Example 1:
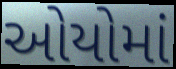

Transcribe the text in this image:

ઓયોમાં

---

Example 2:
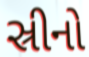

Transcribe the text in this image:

સ્રીનો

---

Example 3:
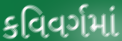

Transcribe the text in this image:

કવિવર્ગમાં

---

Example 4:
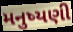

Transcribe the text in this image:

મનુષ્યણી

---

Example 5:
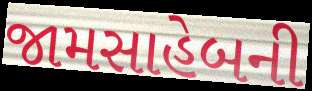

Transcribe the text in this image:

જામસાહેબની